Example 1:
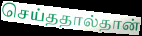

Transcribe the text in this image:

செய்ததால்தான்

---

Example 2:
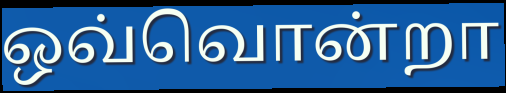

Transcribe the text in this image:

ஒவ்வொன்றா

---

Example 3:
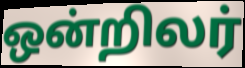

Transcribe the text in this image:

ஒன்றிலர்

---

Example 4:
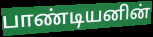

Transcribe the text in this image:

பாண்டியனின்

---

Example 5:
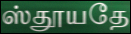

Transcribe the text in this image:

ஸ்தூயதே